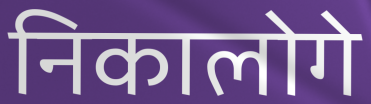
निकालोगे